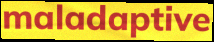
maladaptive